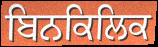
ਬਿਨਕਿਲਿਕ